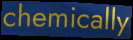
chemically